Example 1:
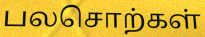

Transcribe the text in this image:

பலசொற்கள்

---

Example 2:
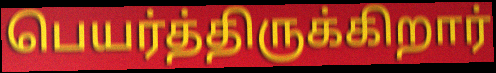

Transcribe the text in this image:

பெயர்த்திருக்கிறார்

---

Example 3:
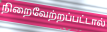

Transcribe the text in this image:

நிறைவேற்றப்பட்டால்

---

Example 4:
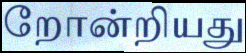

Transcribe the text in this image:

றோன்றியது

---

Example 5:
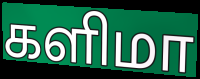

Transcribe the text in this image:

களிமா